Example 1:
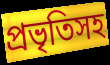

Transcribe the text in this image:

প্রভৃতিসহ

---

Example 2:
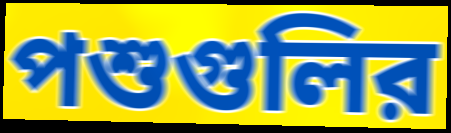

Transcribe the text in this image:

পশুগুলির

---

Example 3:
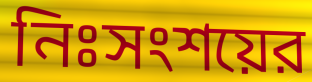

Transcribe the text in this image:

নিঃসংশয়ের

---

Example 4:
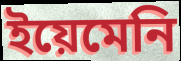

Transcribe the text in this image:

ইয়েমেনি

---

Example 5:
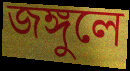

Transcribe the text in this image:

জঙ্গুলে